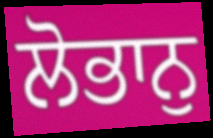
ਲੋਭਾਨੁ